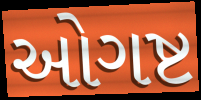
ઓગષ્ટ